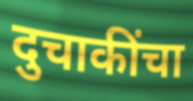
दुचाकींचा